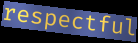
respectful